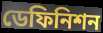
ডেফিনিশন